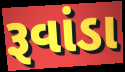
રૂવાંડા